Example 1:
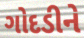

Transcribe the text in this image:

ગોદડીને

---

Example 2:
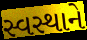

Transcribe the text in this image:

સ્વસ્થાને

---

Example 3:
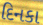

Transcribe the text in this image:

દિનકા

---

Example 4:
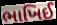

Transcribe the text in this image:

ભાખિઈ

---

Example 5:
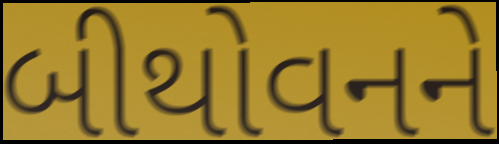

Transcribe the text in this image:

બીથોવનને